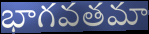
భాగవతమా